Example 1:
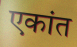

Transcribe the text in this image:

एकांत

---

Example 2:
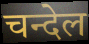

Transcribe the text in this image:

चन्देल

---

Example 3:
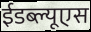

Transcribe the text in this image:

ईडब्ल्यूएस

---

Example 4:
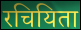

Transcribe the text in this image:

रचियिता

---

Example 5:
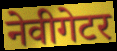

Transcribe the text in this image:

नेवीगेटर